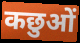
कछुओं